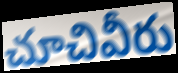
చూచివీరు